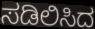
ಸಡಿಲಿಸಿದ